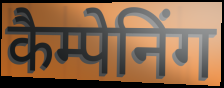
कैम्पेनिंग